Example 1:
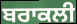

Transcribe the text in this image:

ਬਰਾਕਲੀ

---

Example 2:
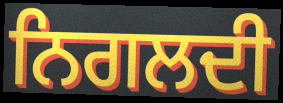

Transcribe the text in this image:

ਨਿਗਲਦੀ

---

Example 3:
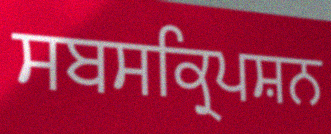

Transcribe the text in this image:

ਸਬਸਕ੍ਰਿਪਸ਼ਨ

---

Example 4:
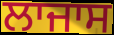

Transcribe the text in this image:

ਲਾਜਾਸ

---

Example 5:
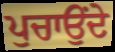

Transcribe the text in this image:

ਪੁਚਾਉਂਦੇ